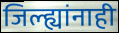
जिल्ह्यांनाही